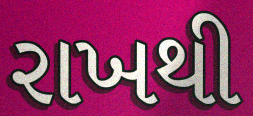
રાખથી